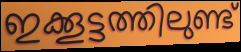
ഇക്കൂട്ടത്തിലുണ്ട്